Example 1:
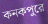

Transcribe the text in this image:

কনকপুরে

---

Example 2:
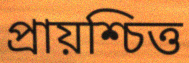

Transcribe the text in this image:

প্রায়শ্চিত্ত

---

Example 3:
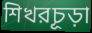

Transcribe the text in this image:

শিখরচূড়া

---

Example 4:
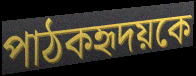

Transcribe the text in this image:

পাঠকহৃদয়কে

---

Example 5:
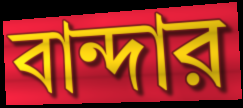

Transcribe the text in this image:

বান্দার